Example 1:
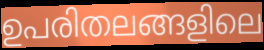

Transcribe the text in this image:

ഉപരിതലങ്ങളിലെ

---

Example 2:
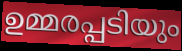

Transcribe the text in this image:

ഉമ്മരപ്പടിയും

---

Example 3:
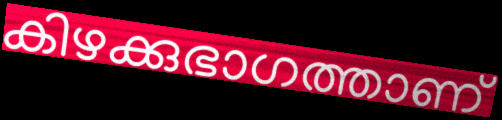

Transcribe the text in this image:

കിഴക്കുഭാഗത്താണ്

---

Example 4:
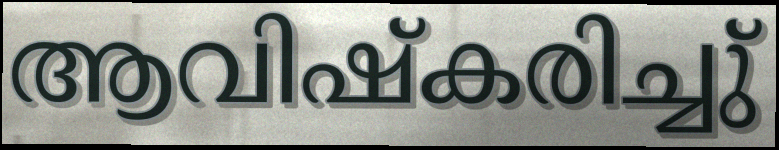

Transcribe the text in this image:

ആവിഷ്കരിച്ചു്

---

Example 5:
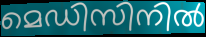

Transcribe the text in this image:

മെഡിസിനിൽ